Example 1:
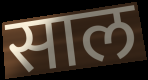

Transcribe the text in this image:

साल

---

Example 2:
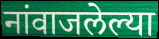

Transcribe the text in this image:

नांवाजलेल्या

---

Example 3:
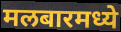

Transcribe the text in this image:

मलबारमध्ये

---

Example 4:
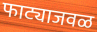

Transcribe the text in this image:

फाट्याजवळ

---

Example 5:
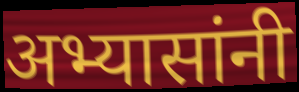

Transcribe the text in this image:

अभ्यासांनी